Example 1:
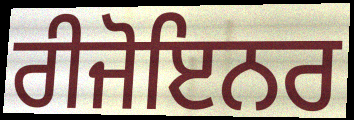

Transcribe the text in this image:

ਰੀਜੋਇਨਰ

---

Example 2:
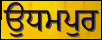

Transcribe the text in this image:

ਉਧਮਪੁਰ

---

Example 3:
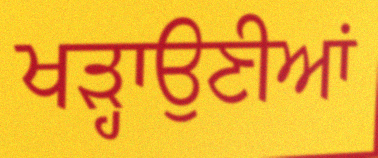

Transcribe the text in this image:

ਖੜ੍ਹਾਉਣੀਆਂ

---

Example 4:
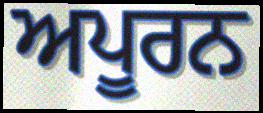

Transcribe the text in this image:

ਅਪੂਰਨ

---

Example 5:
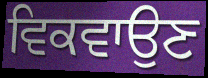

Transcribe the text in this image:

ਵਿਕਵਾਉਣ